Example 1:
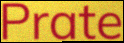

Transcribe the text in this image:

Prate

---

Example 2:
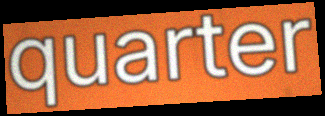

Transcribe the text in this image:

quarter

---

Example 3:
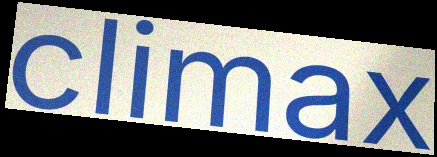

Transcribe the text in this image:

climax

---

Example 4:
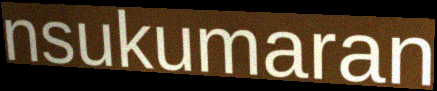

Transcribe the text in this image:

nsukumaran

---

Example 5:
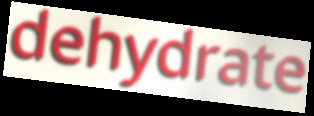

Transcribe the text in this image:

dehydrate